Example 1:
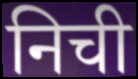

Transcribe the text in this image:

निची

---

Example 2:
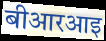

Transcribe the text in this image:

बीआरआइ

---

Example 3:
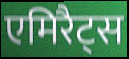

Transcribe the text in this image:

एमिरैट्स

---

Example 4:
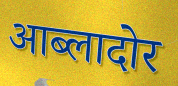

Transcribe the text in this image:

आब्लादोर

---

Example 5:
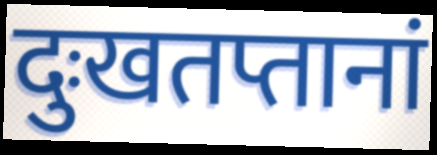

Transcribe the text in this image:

दुःखतप्तानां